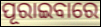
ପୂରାଇବାରେ